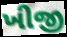
ખીજી